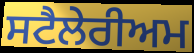
ਸਟੈਲੇਰੀਅਮ